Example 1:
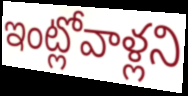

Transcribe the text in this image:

ఇంట్లోవాళ్లని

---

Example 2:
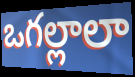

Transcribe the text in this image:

ఒగల్లాలా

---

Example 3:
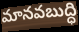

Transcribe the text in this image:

మానవబుద్ధి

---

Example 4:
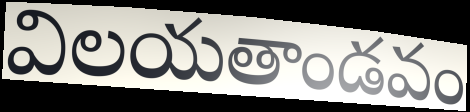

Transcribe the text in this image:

విలయతాండవం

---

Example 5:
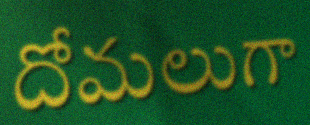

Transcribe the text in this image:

దోమలుగా